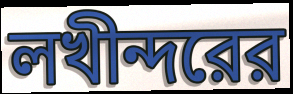
লখীন্দরের